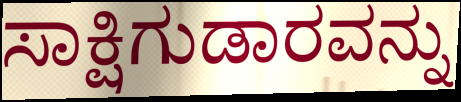
ಸಾಕ್ಷಿಗುಡಾರವನ್ನು